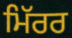
ਮਿੱਰਰ